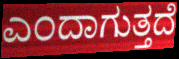
ಎಂದಾಗುತ್ತದೆ